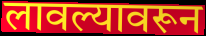
लावल्यावरून